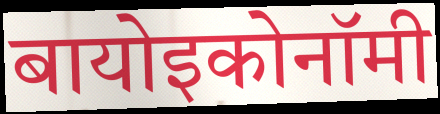
बायोइकोनॉमी